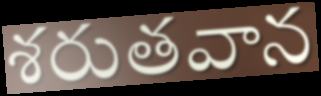
శరుతవాన